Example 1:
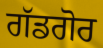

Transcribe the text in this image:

ਗੱਡਗੋਰ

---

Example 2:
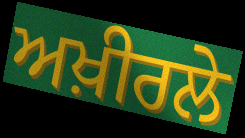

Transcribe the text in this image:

ਅਖ਼ੀਰਲੇ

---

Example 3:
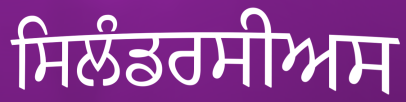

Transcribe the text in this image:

ਸਿਲੰਡਰਸੀਅਸ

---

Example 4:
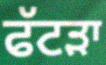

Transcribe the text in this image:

ਫੱਟੜਾ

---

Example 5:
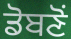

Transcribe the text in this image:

ਡੋਬਣੋਂ